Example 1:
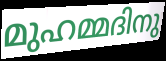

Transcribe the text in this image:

മുഹമ്മദിനു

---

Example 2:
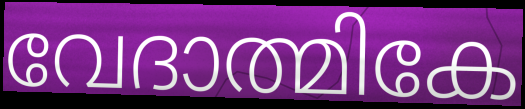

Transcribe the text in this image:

വേദാത്മികേ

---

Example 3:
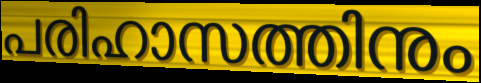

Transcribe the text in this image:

പരിഹാസത്തിനും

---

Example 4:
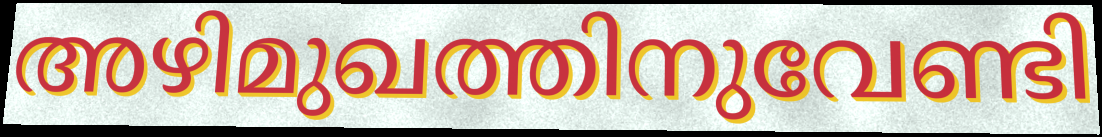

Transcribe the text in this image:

അഴിമുഖത്തിനുവേണ്ടി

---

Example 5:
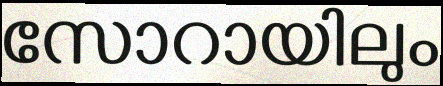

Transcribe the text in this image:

സോറായിലും